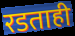
रडताही